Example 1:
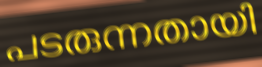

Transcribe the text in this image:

പടരുന്നതായി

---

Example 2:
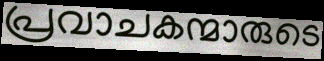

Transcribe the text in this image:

പ്രവാചകന്മാരുടെ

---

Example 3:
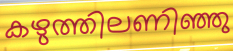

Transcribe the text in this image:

കഴുത്തിലണിഞ്ഞു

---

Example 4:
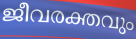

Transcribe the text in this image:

ജീവരക്തവും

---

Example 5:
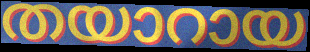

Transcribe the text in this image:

തയാറായ